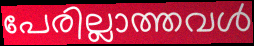
പേരില്ലാത്തവൾ